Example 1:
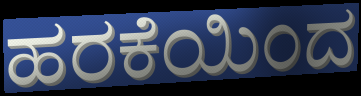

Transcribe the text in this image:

ಹರಕೆಯಿಂದ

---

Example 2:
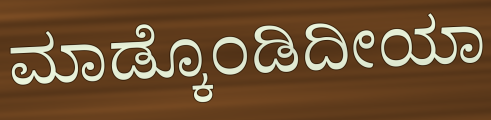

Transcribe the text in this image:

ಮಾಡ್ಕೊಂಡಿದೀಯಾ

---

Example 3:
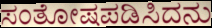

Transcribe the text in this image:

ಸಂತೋಷಪಡಿಸಿದನು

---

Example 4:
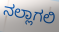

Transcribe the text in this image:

ನಲ್ಲಾಗಲಿ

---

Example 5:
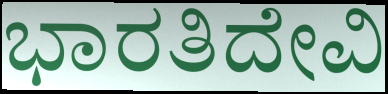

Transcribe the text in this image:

ಭಾರತಿದೇವಿ